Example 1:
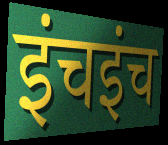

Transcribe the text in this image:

इंचइंच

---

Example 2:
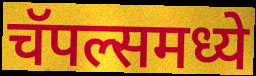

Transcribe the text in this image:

चॅपल्समध्ये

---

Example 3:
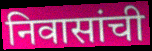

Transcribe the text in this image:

निवासांची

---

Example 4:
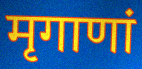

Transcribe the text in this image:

मृगाणां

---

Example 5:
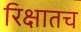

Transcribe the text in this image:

रिक्षातच